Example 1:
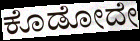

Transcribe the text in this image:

ಕೊಡೋದೇ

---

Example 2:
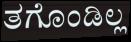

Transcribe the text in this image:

ತಗೊಂಡಿಲ್ಲ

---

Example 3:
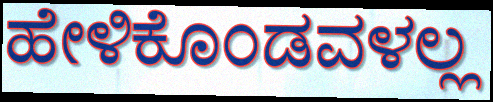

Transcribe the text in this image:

ಹೇಳಿಕೊಂಡವಳಲ್ಲ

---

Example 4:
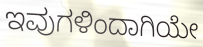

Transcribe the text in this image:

ಇವುಗಳಿಂದಾಗಿಯೇ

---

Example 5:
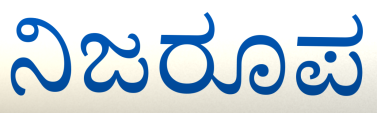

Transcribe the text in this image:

ನಿಜರೂಪ